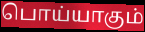
பொய்யாகும்